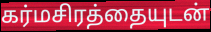
கர்மசிரத்தையுடன்